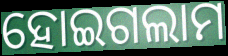
ହୋଇଗଲାମ